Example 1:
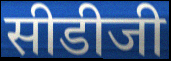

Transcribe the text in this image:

सीडीजी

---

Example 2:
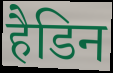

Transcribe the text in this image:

हैडिन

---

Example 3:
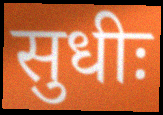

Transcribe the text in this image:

सुधीः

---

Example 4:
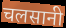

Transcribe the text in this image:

चलसानी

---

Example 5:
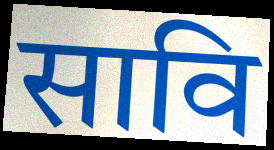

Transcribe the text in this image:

सावि